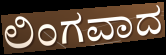
ಲಿಂಗವಾದ